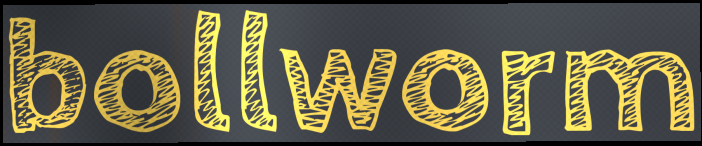
bollworm